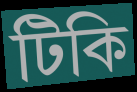
টিকি